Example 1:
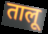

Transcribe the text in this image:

तालू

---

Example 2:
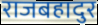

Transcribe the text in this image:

राजबहादुर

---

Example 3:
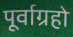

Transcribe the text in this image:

पूर्वाग्रहो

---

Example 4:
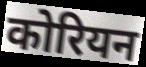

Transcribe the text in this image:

कोरियन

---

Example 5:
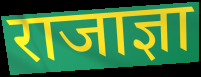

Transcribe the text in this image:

राजाज्ञा